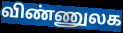
விண்ணுலக